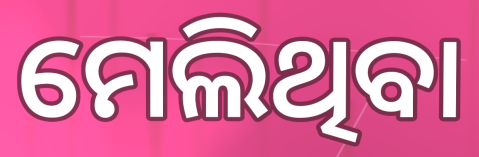
ମେଲିଥିବା